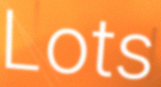
Lots